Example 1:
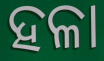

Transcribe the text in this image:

ହଳା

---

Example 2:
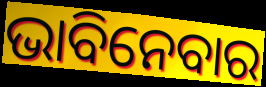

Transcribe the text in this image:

ଭାବିନେବାର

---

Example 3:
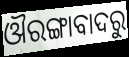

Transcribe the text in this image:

ଔରଙ୍ଗାବାଦରୁ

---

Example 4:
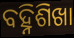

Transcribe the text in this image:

ବହ୍ନିଶିଖା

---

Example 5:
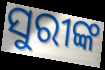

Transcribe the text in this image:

ସୁରୀଙ୍କ